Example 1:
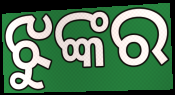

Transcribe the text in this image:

ଝୁଙ୍କର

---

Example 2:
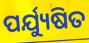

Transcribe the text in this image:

ପର୍ଯ୍ୟୁଷିତ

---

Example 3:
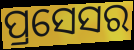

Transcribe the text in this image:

ପ୍ରସେସର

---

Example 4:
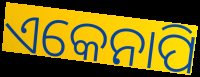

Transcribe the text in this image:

ଏକେନାପି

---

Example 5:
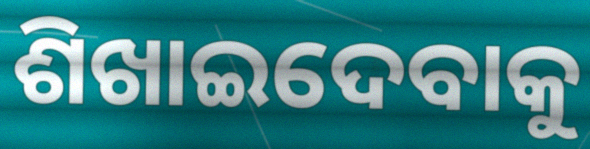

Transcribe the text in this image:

ଶିଖାଇଦେବାକୁ